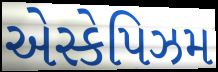
એસ્કેપિઝમ